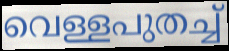
വെള്ളപുതച്ച്